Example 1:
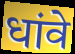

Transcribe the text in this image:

धांवे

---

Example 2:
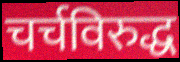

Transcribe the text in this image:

चर्चविरुद्ध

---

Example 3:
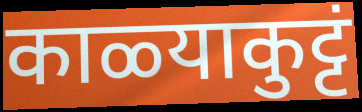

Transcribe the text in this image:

काळ्याकुट्टं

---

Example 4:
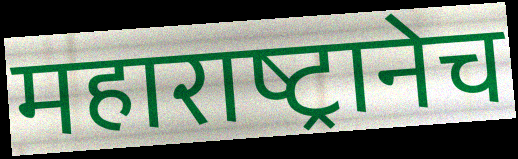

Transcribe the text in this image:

महाराष्ट्रानेच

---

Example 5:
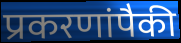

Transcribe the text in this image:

प्रकरणांपैकी